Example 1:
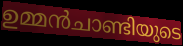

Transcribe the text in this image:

ഉമ്മൻചാണ്ടിയുടെ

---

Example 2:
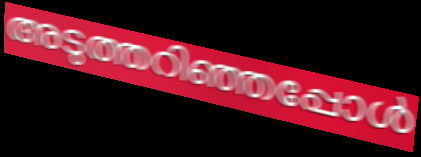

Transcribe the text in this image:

അടുത്തറിഞ്ഞപ്പോൾ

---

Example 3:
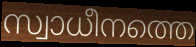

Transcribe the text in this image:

സ്വാധീനത്തെ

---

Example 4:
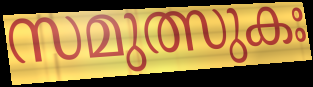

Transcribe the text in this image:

സമുത്സുകഃ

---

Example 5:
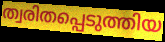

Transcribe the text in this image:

ത്വരിതപ്പെടുത്തിയ